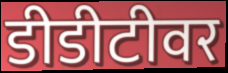
डीडीटीवर